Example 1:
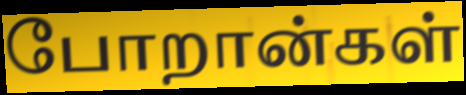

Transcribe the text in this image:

போறான்கள்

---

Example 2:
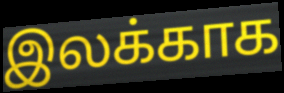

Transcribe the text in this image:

இலக்காக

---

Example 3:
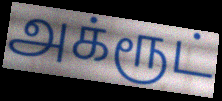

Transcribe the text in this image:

அக்ரூட்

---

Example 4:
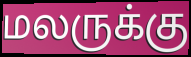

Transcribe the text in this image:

மலருக்கு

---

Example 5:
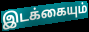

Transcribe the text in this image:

இடக்கையும்